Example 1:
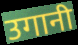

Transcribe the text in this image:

उगानी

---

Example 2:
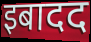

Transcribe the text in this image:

इबादद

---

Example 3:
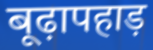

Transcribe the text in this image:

बूढ़ापहाड़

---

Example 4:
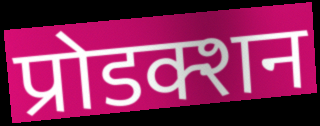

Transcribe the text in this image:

प्रोडक्शन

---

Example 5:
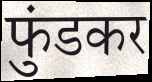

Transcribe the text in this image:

फुंडकर